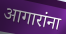
आगारांना